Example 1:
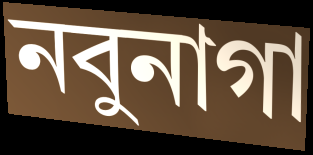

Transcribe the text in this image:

নবুনাগা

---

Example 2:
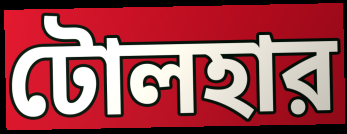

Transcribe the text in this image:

টোলহার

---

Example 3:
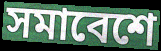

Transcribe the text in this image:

সমাবেশে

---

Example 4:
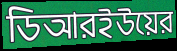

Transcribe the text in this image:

ডিআরইউয়ের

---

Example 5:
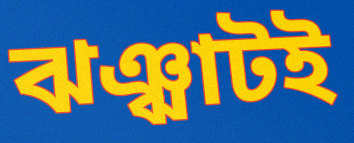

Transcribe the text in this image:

ঝঞ্ঝাটই